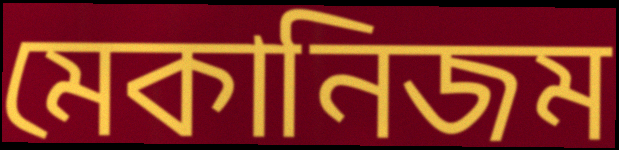
মেকানিজম